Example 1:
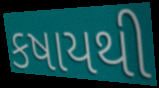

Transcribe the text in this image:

કષાયથી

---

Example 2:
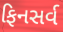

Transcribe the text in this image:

ફિનસર્વ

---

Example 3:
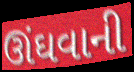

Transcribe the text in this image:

ઊંઘવાની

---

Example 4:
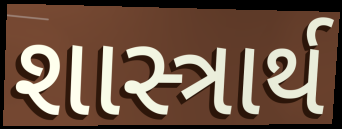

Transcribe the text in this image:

શાસ્ત્રાર્થ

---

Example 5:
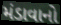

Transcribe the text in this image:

મંડાવાનો